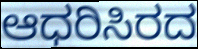
ಆಧರಿಸಿರದ